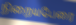
நிறையபேரை